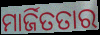
ମାର୍ଜିତତାର